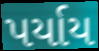
પર્યાય